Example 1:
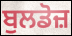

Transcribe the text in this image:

ਬੁਲਡੋਜ਼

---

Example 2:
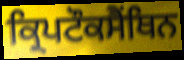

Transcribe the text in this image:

ਕ੍ਰਿਪਟੌਕਸੈਂਥਿਨ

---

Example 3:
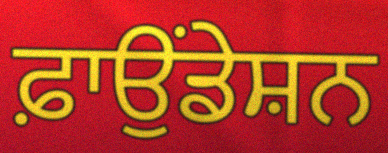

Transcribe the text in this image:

ਫ਼ਾਉਂਡੇਸ਼ਨ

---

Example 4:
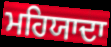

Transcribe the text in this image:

ਮਹਿਯਾਦਾ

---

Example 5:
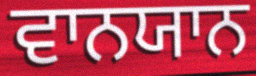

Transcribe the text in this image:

ਵਾਨਯਾਨ